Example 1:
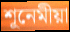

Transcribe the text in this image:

শূনেমীয়া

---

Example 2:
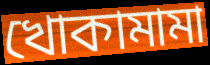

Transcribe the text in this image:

খোকামামা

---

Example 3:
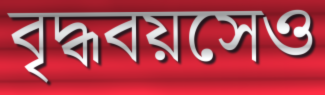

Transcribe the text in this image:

বৃদ্ধবয়সেও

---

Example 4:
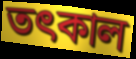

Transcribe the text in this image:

তৎকাল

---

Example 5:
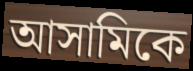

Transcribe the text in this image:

আসামিকে